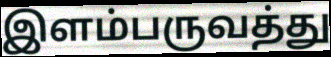
இளம்பருவத்து